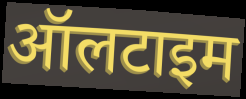
ऑलटाइम